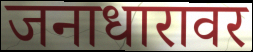
जनाधारावर